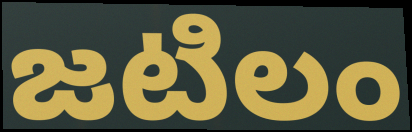
జటిలం